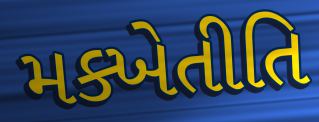
મક્ખેતીતિ